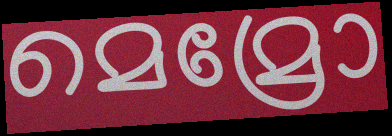
മെമ്രോ